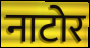
नाटोर